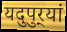
यदुपुर्यां